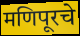
मणिपूरचे